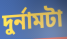
দুর্নামটা